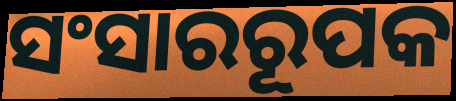
ସଂସାରରୂପକ